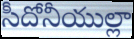
సీదోనీయుల్లా